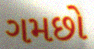
ગમછો